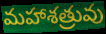
మహాశత్రువు